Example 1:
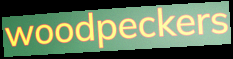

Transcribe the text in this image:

woodpeckers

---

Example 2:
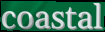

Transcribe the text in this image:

coastal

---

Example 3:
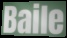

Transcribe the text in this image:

Baile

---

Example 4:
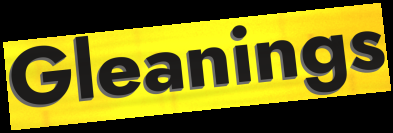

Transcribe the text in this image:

Gleanings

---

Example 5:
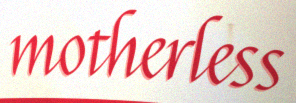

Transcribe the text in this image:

motherless